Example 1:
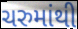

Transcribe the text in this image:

ચરુમાંથી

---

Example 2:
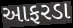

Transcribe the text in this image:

આફરડા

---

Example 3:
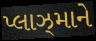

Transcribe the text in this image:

પ્લાઝ્માને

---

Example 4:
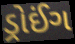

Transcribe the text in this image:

ડ્રોઈંગ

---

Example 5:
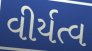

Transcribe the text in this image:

વીર્યત્વ